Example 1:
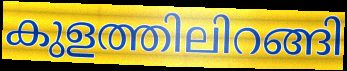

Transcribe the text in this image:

കുളത്തിലിറങ്ങി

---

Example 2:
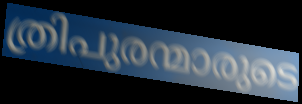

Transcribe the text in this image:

ത്രിപുരന്മാരുടെ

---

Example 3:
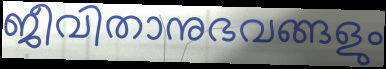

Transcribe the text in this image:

ജീവിതാനുഭവങ്ങളും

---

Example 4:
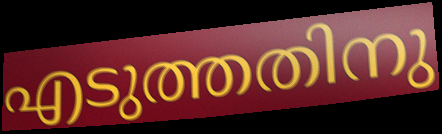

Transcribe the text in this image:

എടുത്തതിനു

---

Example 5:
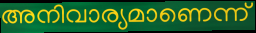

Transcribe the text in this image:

അനിവാര്യമാണെന്ന്